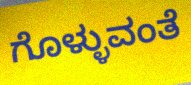
ಗೊಳ್ಳುವಂತೆ